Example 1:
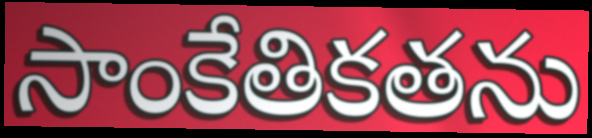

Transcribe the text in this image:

సాంకేతికతను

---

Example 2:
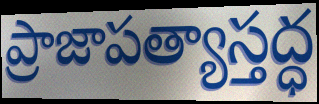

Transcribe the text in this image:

ప్రాజాపత్యాస్తద్ధ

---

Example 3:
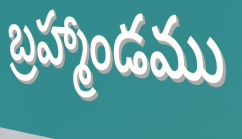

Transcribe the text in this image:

బ్రహ్మాండము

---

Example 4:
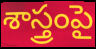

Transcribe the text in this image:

శాస్త్రంపై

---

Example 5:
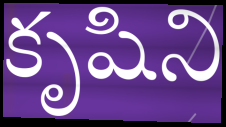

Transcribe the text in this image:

కృషిని